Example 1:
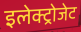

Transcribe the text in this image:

इलेक्ट्रोजेट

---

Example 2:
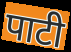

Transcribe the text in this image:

पाटी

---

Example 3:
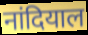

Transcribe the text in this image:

नांदियाल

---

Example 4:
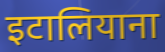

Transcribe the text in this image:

इटालियाना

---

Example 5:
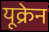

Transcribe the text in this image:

यूक्रेन